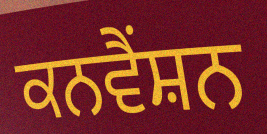
ਕਨਵੈੰਸ਼ਨ